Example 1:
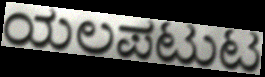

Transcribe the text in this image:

ಯಲಪಟುಟ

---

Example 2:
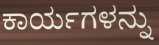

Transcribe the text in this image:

ಕಾರ್ಯಗಳನ್ನು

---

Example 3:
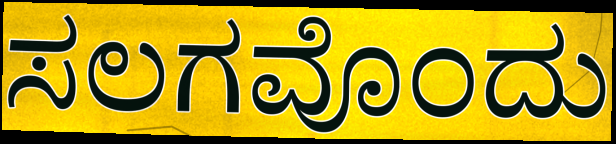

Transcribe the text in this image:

ಸಲಗವೊಂದು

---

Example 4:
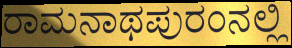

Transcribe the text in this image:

ರಾಮನಾಥಪುರಂನಲ್ಲಿ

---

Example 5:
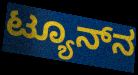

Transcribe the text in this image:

ಟ್ಯೂನ್‌ನ